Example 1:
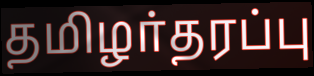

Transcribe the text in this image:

தமிழர்தரப்பு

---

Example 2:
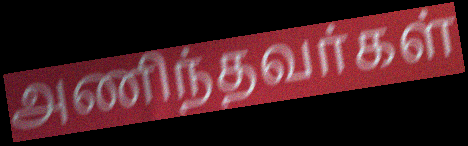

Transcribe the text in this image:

அணிந்தவர்கள்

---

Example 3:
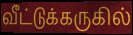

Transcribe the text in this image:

வீட்டுக்கருகில்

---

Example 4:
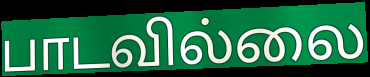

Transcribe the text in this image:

பாடவில்லை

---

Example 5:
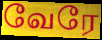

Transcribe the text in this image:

வேரே